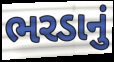
ભરડાનું